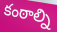
కంఠాల్ని